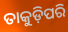
ତାକୁଡ଼ିପରି